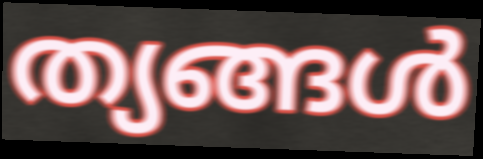
ത്യങ്ങൾ